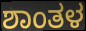
ಶಾಂತಳ